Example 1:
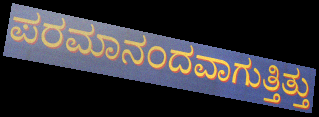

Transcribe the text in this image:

ಪರಮಾನಂದವಾಗುತ್ತಿತ್ತು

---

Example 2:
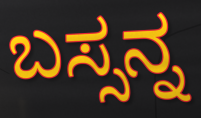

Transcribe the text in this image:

ಬಸ್ಸನ್ನ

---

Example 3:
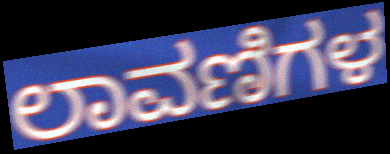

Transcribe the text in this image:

ಲಾವಣಿಗಳ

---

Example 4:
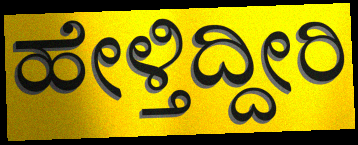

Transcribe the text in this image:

ಹೇಳ್ತಿದ್ದೀರಿ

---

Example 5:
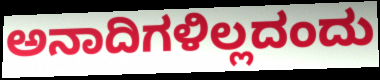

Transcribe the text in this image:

ಅನಾದಿಗಳಿಲ್ಲದಂದು